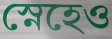
স্নেহেও